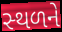
સ્‍થળને